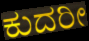
ಕುದರೀ